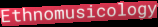
Ethnomusicology